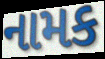
નામક